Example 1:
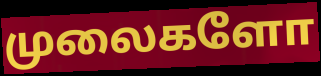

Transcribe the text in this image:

முலைகளோ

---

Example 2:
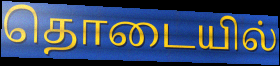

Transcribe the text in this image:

தொடையில்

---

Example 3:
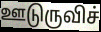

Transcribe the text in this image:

ஊடுருவிச்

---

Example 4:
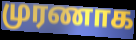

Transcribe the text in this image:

முரணாக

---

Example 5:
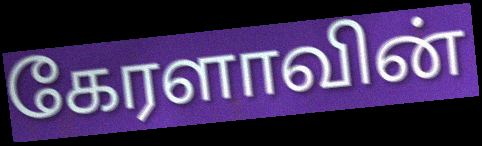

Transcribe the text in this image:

கேரளாவின்